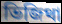
ভিজিথা